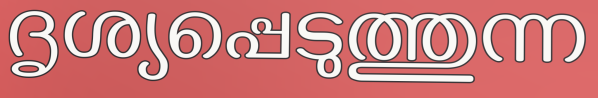
ദൃശ്യപ്പെടുത്തുന്ന